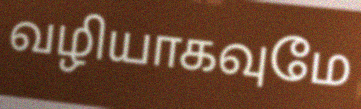
வழியாகவுமே